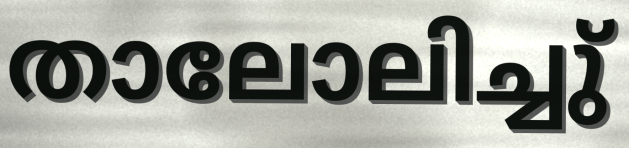
താലോലിച്ചു്